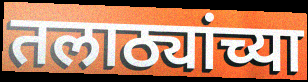
तलाठ्यांच्या